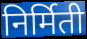
निर्मिती